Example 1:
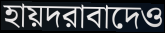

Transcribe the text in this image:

হায়দরাবাদেও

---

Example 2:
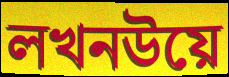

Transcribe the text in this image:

লখনউয়ে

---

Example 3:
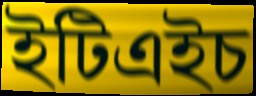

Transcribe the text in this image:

ইটিএইচ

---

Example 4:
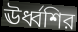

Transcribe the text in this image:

ঊর্ধ্বশির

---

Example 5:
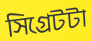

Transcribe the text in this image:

সিগ্রেটটা